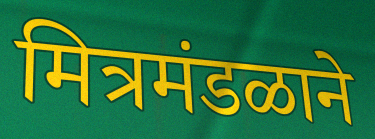
मित्रमंडळाने